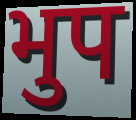
भुप